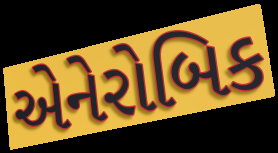
એનેરોબિક